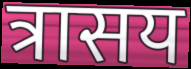
त्रासय